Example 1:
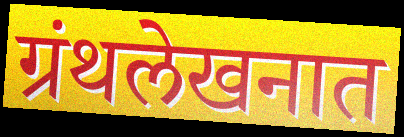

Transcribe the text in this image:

ग्रंथलेखनात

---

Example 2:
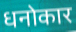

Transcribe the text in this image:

धनोकार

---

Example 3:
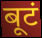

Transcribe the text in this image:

बूटं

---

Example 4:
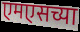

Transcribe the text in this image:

एमएसच्या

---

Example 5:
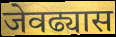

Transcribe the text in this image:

जेवढ्यास